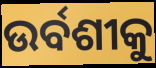
ଉର୍ବଶୀକୁ